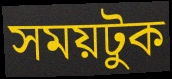
সময়টুক